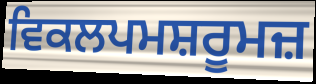
ਵਿਕਲਪਮਸ਼ਰੂਮਜ਼